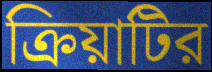
ক্রিয়াটির